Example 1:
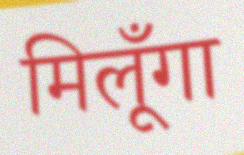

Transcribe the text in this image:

मिलूँगा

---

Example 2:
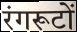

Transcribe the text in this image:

रंगरूटों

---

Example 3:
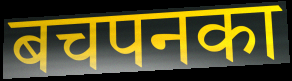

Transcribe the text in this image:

बचपनका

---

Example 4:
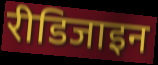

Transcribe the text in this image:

रीडिजाइन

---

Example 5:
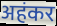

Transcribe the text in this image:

अहंकर